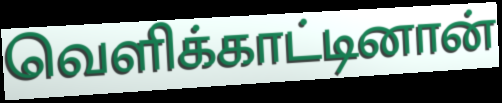
வெளிக்காட்டினான்